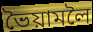
ভৈয়ামলৈ